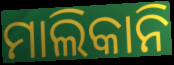
ମାଲିକାନି